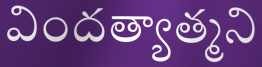
విందత్యాత్మని